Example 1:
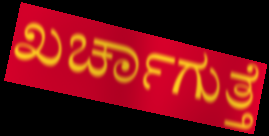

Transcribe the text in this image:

ಖರ್ಚಾಗುತ್ತೆ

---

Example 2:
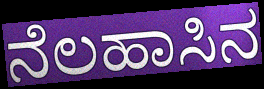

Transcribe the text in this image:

ನೆಲಹಾಸಿನ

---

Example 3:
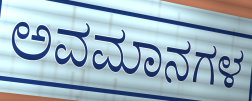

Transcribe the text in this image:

ಅವಮಾನಗಳ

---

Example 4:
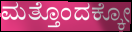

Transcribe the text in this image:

ಮತ್ತೊಂದಕ್ಕೋ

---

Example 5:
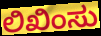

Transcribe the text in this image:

ಲಿಖಿಂಸು